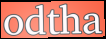
odtha